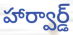
హార్వార్డ్